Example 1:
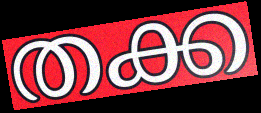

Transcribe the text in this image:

തക്ക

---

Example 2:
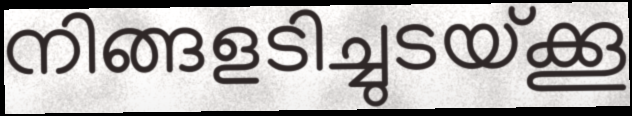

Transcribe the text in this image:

നിങ്ങളടിച്ചുടയ്ക്കൂ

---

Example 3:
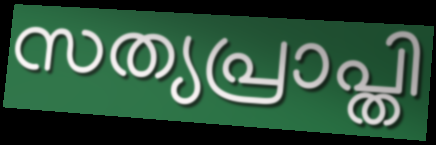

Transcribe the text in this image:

സത്യപ്രാപ്തി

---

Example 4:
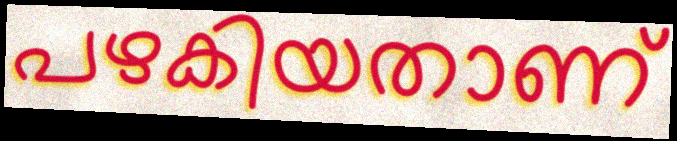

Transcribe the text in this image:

പഴകിയതാണ്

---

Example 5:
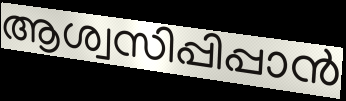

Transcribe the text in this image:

ആശ്വസിപ്പിപ്പാൻ